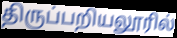
திருப்பறியலூரில்